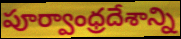
పూర్వాంధ్రదేశాన్ని